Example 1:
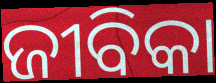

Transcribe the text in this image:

ଜୀବିକା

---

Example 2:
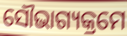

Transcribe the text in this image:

ସୌଭାଗ୍ୟକ୍ରମେ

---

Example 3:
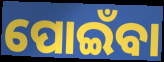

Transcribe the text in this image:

ପୋଇଁବା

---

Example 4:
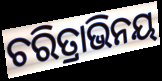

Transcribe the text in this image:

ଚରିତ୍ରାଭିନୟ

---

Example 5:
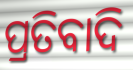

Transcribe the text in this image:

ପ୍ରତିବାଦି